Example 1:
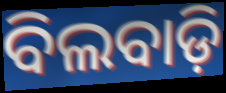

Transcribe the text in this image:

ବିଲବାଡ଼ି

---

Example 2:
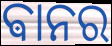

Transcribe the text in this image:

ଵାନର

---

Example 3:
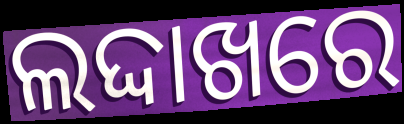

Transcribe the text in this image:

ଲଦ୍ଦାଖରେ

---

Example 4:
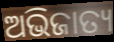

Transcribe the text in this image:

ଅଭିଜାତ୍ୟ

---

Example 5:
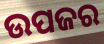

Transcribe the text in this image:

ଉପଜର